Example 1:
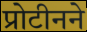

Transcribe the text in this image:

प्रोटीनने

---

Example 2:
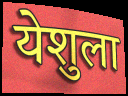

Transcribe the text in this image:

येशुला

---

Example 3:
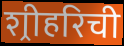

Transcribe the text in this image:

श्रीहरिची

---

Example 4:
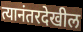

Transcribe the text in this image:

त्यानंतरदेखील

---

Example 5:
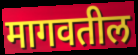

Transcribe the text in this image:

मागवतील